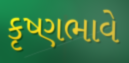
કૃષ્ણભાવે